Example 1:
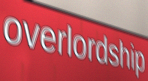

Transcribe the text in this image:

overlordship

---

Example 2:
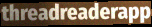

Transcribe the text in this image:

threadreaderapp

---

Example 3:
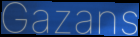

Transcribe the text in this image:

Gazans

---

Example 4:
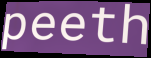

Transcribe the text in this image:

peeth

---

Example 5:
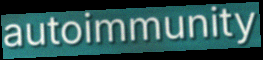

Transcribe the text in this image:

autoimmunity